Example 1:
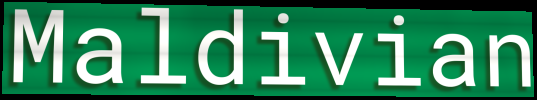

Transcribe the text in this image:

Maldivian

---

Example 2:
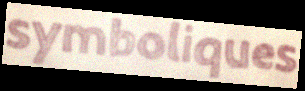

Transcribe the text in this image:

symboliques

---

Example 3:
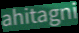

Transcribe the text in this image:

ahitagni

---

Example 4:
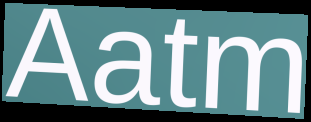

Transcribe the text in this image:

Aatm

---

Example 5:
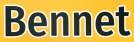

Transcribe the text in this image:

Bennet